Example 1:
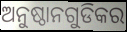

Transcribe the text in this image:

ଅନୁଷ୍ଠାନଗୁଡିକର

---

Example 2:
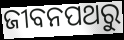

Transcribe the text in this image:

ଜୀବନପଥରୁ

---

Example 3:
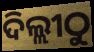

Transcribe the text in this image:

ଦିଲ୍ଲୀଠୁ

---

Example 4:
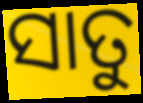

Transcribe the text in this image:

ସାତୁ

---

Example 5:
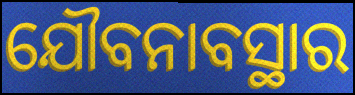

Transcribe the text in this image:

ଯୌବନାବସ୍ଥାର